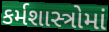
કર્મશાસ્ત્રોમાં